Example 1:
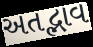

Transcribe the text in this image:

અતદ્ભાવ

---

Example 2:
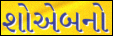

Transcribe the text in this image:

શોએબનો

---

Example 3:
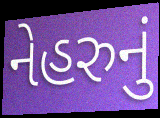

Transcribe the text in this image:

નેહરુનું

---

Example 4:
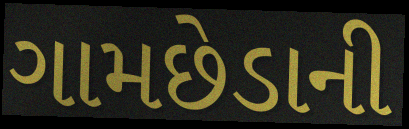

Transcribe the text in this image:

ગામછેડાની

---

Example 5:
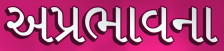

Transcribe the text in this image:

અપ્રભાવના